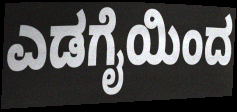
ಎಡಗೈಯಿಂದ